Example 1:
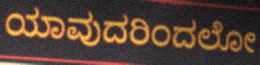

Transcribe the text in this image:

ಯಾವುದರಿಂದಲೋ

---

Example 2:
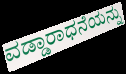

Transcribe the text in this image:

ವಡ್ಡಾರಾಧನೆಯನ್ನು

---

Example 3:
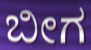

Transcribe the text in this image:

ಬೀಗ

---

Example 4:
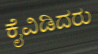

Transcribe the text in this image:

ಕೈವಿಡಿದರು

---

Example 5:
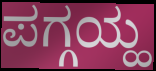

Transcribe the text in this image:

ಪಗ್ಗಯ್ಹ